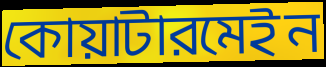
কোয়াটারমেইন